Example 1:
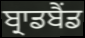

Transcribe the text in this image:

ਬ੍ਰਾਡਬੈਂਡ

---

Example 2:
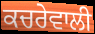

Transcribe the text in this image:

ਕਚਰੇਵਾਲੀ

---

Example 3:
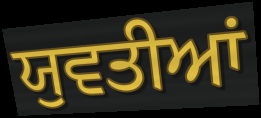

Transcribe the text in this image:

ਯੁਵਤੀਆਂ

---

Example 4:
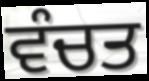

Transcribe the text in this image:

ਵੰਚਤ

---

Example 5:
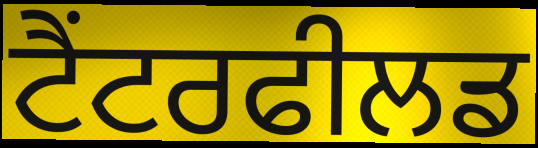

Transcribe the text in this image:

ਟੈਂਟਰਫੀਲਡ